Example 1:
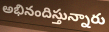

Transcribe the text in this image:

అభినందిస్తున్నారు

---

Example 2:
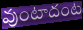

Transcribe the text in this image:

వుంటాదంట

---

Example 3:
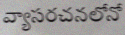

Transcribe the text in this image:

వ్యాసరచనలోనో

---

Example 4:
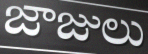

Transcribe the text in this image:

జాజులు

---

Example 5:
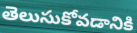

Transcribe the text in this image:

తెలుసుకోవడానికి